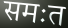
समःत